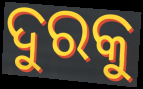
ଦୁରକୁ